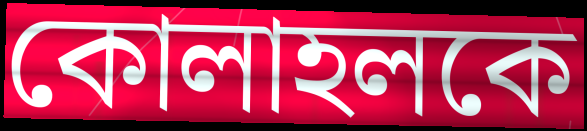
কোলাহলকে